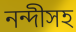
নন্দীসহ